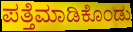
ಪತ್ತೆಮಾಡಿಕೊಂಡು